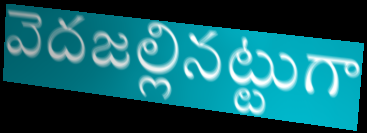
వెదజల్లినట్టుగా